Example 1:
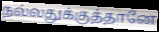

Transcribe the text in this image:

நல்லதுக்குத்தானே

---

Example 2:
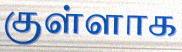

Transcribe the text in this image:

குள்ளாக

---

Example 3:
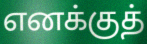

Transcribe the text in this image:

எனக்குத்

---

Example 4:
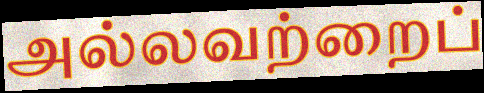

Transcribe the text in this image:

அல்லவற்றைப்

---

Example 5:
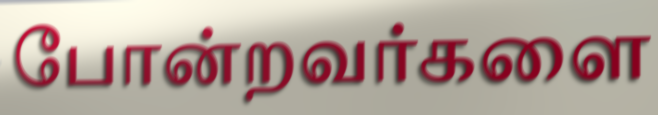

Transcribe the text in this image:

போன்றவர்களை